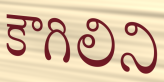
కౌగిలిని